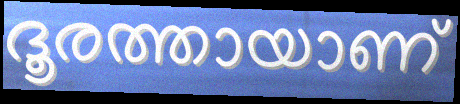
ദൂരത്തായാണ്